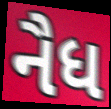
નૈધ